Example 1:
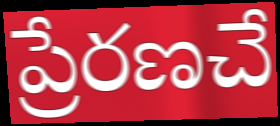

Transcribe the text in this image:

ప్రేరణచే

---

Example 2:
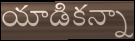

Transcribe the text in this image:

యాడికన్నా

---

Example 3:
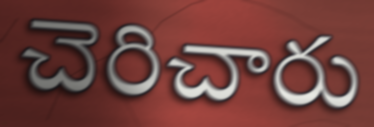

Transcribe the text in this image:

చెరిచారు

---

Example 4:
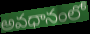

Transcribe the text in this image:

అవధానంలో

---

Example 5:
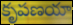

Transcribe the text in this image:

కృపణయా